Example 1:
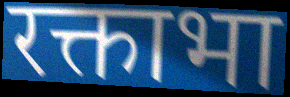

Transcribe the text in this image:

रक्ताभा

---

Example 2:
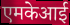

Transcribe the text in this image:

एमकेआई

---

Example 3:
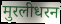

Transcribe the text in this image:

मुरलीधरन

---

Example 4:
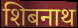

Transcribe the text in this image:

शिबनाथ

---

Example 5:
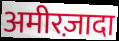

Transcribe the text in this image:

अमीरज़ादा